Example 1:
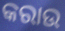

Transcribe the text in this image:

କରାଉ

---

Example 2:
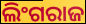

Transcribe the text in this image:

ଲିଂଗରାଜ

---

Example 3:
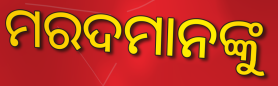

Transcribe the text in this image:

ମରଦମାନଙ୍କୁ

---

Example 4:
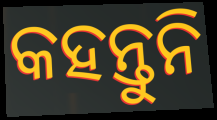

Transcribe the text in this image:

କହନ୍ତୁନି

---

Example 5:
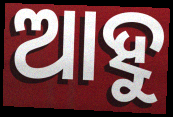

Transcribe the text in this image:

ଆହୁ